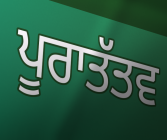
ਪੂਰਾਤੱਤਵ